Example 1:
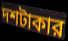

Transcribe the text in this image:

দশটাকার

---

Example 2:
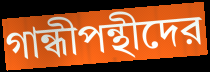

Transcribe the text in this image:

গান্ধীপন্থীদের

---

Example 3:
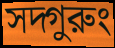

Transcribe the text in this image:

সদ্গুরুং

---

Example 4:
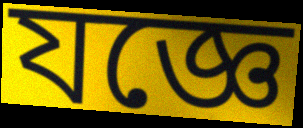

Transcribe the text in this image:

যজ্ঞে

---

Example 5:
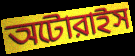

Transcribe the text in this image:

অটোরাইস